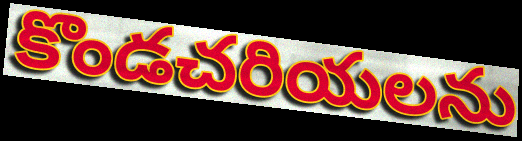
కొండచరియలను